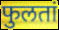
फुलतां